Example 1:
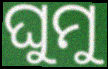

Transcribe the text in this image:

ଘୁମୁ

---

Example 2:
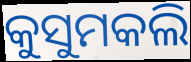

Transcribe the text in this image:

କୁସୁମକଲି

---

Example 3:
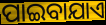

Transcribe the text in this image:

ପାଇବାଯାଏ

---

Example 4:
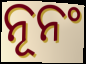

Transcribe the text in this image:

ନୂନଂ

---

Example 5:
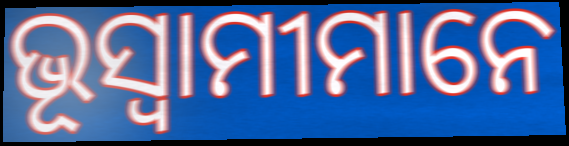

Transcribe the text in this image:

ଭୂସ୍ୱାମୀମାନେ